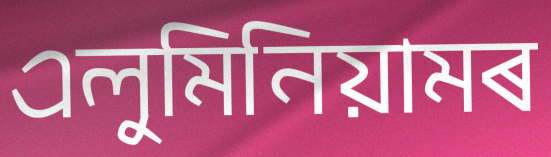
এলুমিনিয়ামৰ